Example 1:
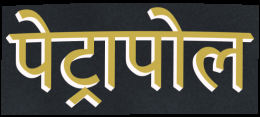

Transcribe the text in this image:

पेट्रापोल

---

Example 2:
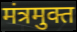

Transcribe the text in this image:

मंत्रमुक्त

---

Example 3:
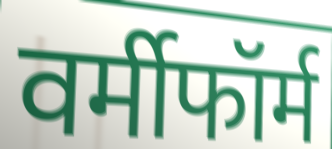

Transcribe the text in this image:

वर्मीफॉर्म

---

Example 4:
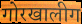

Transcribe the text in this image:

गोरखालीग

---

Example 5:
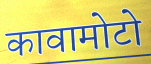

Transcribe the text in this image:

कावामोटो